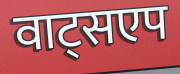
वाट्सएप